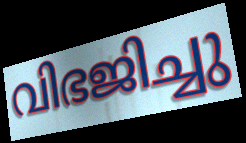
വിഭജിച്ചു